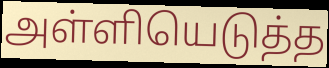
அள்ளியெடுத்த